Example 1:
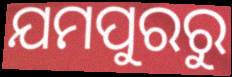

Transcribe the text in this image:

ଯମପୁରରୁ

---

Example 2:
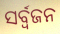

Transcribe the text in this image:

ସର୍ବ୍ବଜନ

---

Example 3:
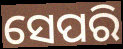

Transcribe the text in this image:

ସେପରି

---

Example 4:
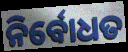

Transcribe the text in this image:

ନିର୍ବୋଧତ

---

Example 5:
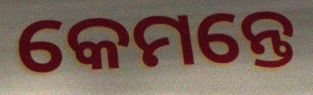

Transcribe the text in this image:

କେମନ୍ତେ